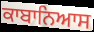
ਕਾਬਾਨਿਆਸ